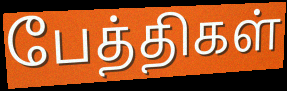
பேத்திகள்